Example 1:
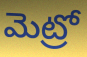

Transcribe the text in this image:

మెట్రో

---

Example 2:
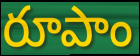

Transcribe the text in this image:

రూపాం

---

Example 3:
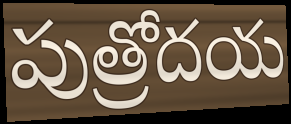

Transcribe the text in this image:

పుత్రోదయ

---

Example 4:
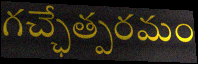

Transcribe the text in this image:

గచ్ఛేత్పరమం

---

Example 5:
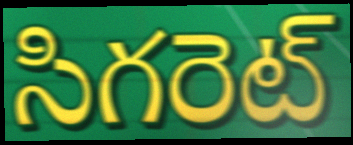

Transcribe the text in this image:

సిగరెట్